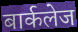
बार्कलेज